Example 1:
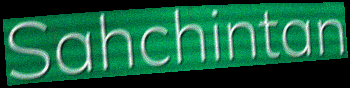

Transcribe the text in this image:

Sahchintan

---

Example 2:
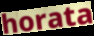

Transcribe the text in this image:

horata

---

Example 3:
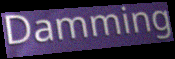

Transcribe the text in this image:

Damming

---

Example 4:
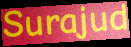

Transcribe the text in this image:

Surajud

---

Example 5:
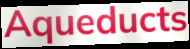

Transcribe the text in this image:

Aqueducts